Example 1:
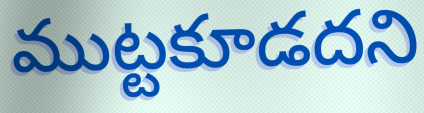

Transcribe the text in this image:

ముట్టకూడదని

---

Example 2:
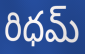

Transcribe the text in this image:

రిధమ్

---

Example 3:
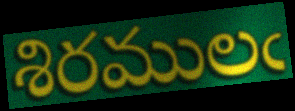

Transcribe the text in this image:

శిరములఁ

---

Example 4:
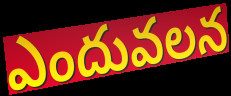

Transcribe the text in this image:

ఎందువలన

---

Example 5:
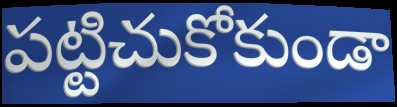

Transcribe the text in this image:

పట్టిచుకోకుండా